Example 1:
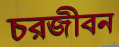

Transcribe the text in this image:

চরজীবন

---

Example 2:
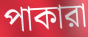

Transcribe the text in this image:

পাকারা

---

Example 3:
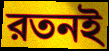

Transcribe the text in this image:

রতনই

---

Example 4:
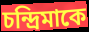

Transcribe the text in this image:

চন্দ্রিমাকে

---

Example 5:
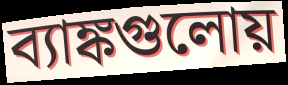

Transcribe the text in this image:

ব্যাঙ্কগুলোয়